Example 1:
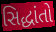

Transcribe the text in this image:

સિદ્ધાંતો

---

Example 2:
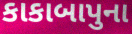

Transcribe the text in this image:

કાકાબાપુના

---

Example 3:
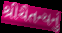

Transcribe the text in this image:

શ્રીચૈતન્યનું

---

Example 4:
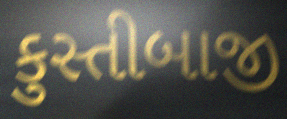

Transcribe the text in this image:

કુસ્તીબાજી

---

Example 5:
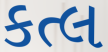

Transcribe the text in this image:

કત્લ